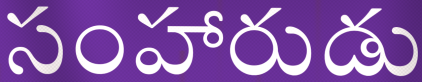
సంహారుడు